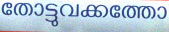
തോട്ടുവക്കത്തോ